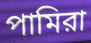
পামিরা